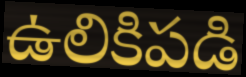
ఉలికిపడి